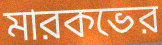
মারকভের